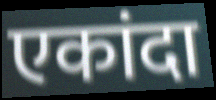
एकांदा